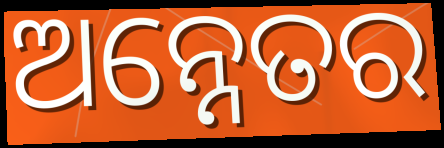
ଅନ୍ନେତର